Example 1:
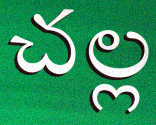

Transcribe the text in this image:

చల్ల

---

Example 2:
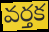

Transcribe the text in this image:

వర్తక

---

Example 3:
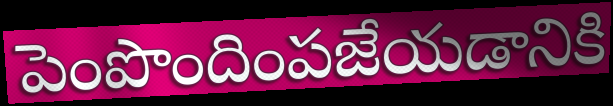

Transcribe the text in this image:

పెంపొందింపజేయడానికి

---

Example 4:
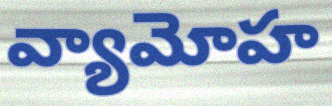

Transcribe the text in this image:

వ్యామోహ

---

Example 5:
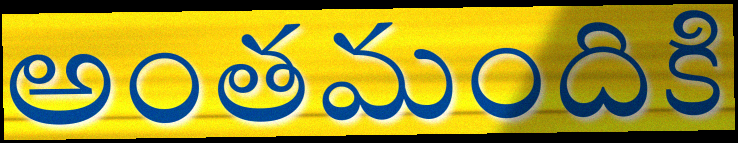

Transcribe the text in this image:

అంతమందికి